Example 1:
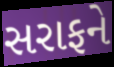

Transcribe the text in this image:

સરાફને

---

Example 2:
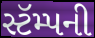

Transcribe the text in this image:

સ્ટૅમ્પની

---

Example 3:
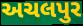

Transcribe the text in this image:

અચલપુર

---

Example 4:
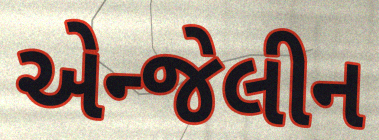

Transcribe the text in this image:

એન્જેલીન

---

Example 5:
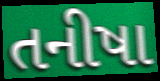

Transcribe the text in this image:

તનીષા